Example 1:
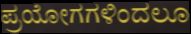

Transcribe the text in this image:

ಪ್ರಯೋಗಗಳಿಂದಲೂ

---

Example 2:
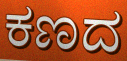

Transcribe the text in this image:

ಕಣದ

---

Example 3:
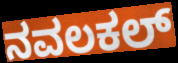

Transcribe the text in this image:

ನವಲಕಲ್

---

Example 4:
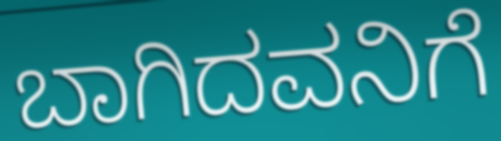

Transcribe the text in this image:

ಬಾಗಿದವನಿಗೆ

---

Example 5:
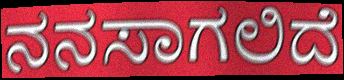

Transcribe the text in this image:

ನನಸಾಗಲಿದೆ